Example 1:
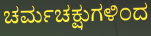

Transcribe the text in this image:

ಚರ್ಮಚಕ್ಷುಗಳಿಂದ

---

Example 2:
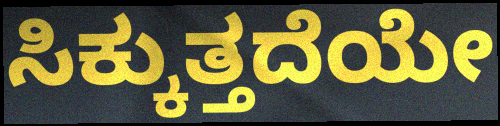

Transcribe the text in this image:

ಸಿಕ್ಕುತ್ತದೆಯೇ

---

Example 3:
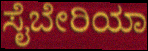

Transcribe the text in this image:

ಸೈಬೇರಿಯಾ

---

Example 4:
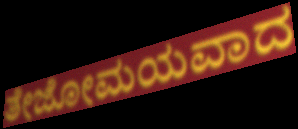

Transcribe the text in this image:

ತೇಜೋಮಯವಾದ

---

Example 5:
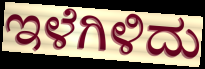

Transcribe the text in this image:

ಇಳೆಗಿಳಿದು